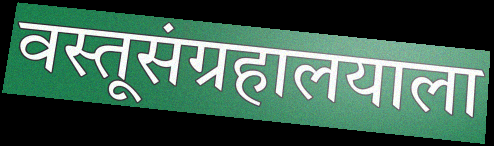
वस्तूसंग्रहालयाला